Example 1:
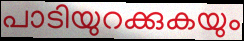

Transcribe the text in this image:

പാടിയുറക്കുകയും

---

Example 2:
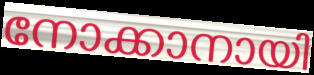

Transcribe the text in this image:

നോക്കാനായി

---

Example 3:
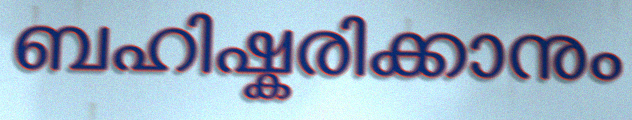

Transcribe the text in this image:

ബഹിഷ്കരിക്കാനും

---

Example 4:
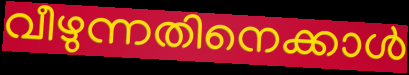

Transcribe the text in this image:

വീഴുന്നതിനെക്കാൾ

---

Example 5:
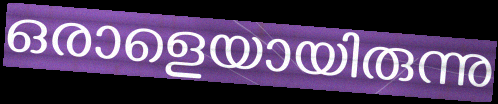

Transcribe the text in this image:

ഒരാളെയായിരുന്നു